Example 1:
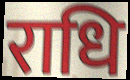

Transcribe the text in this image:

राधि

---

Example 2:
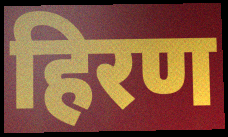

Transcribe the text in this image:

हिरण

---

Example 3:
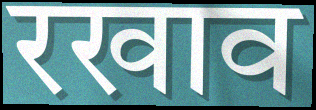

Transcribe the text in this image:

रखाव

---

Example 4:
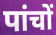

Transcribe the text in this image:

पांचों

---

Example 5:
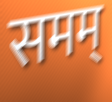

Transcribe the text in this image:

समम्